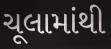
ચૂલામાંથી